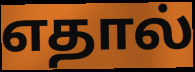
எதால்